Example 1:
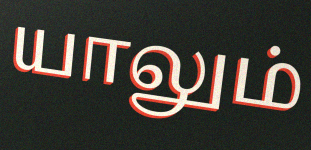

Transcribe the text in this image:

யாலும்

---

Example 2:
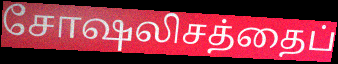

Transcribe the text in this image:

சோஷலிசத்தைப்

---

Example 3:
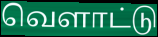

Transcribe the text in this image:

வெளாட்டு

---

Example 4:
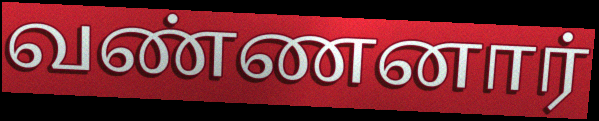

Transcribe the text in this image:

வண்ணனார்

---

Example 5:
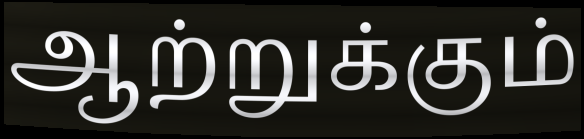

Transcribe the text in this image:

ஆற்றுக்கும்